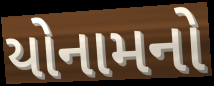
યોનામનો